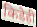
किडेही